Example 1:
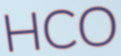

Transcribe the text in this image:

HCO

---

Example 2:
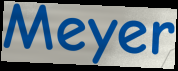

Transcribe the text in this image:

Meyer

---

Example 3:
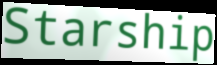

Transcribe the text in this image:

Starship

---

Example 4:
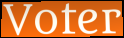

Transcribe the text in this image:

Voter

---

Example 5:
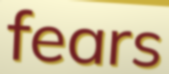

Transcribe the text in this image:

fears